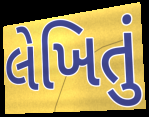
લેખિતું